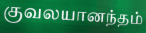
குவலயானந்தம்